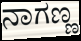
ನಾಗಣ್ಣ